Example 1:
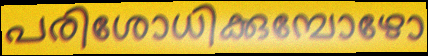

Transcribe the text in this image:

പരിശോധിക്കുമ്പോഴോ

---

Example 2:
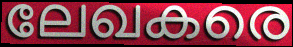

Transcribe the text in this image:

ലേഖകരെ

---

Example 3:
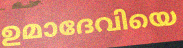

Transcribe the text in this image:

ഉമാദേവിയെ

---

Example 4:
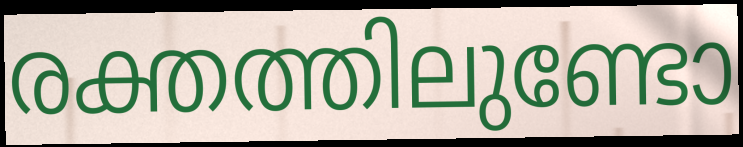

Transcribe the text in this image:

രക്തത്തിലുണ്ടോ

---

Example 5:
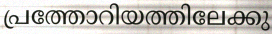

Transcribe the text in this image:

പ്രത്തോറിയത്തിലേക്കു